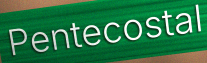
Pentecostal